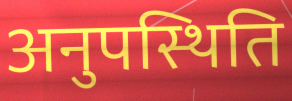
अनुपस्थिति